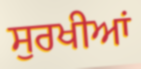
ਸੁਰਖੀਆਂ